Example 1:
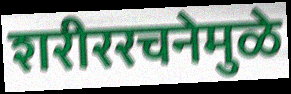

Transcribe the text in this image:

शरीररचनेमुळे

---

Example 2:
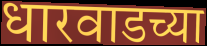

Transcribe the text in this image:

धारवाडच्या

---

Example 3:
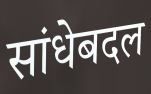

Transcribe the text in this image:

सांधेबदल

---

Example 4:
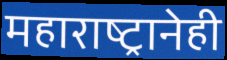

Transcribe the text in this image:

महाराष्ट्रानेही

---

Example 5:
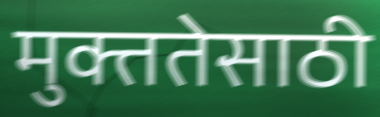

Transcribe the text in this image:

मुक्ततेसाठी